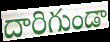
దారిగుండా